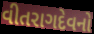
વીતરાગદેવનો